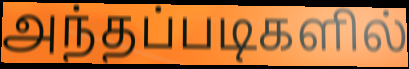
அந்தப்படிகளில்